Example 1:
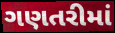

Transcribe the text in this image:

ગણતરીમાં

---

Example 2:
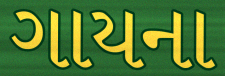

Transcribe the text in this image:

ગાયના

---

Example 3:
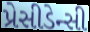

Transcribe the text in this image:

પ્રેસીડેન્સી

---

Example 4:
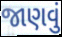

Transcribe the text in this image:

જાણવું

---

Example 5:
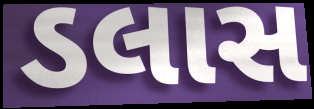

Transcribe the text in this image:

ડલાસ